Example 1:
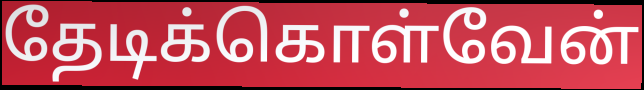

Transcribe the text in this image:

தேடிக்கொள்வேன்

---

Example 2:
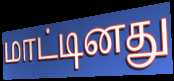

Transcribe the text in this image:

மாட்டினது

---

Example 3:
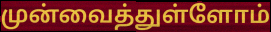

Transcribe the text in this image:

முன்வைத்துள்ளோம்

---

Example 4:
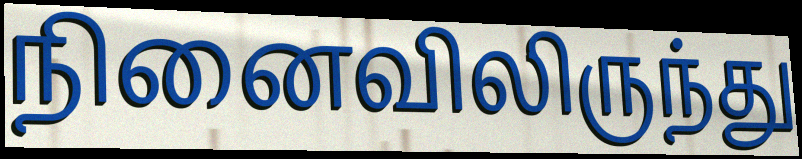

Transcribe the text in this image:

நினைவிலிருந்து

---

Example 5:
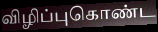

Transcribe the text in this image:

விழிப்புகொண்ட